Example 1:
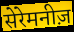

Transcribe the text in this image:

सेरेमनीज़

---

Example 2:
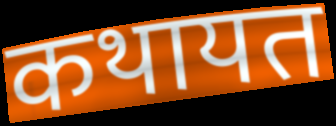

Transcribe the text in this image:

कथायत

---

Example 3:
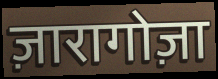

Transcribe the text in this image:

ज़ारागोज़ा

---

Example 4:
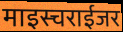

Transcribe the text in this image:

माइस्चराईजर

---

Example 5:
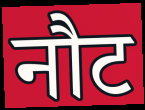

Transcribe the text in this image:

नौट